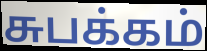
சுபக்கம்